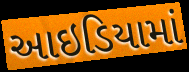
આઇડિયામાં